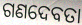
ଗଣଦେବତା